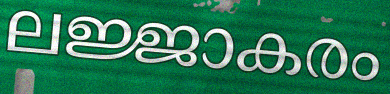
ലജ്ജാകരം